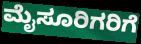
ಮೈಸೂರಿಗರಿಗೆ